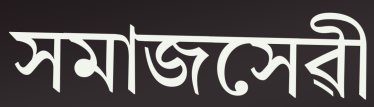
সমাজসেৱী